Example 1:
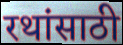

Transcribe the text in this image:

रथांसाठी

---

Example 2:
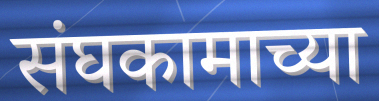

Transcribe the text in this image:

संघकामाच्या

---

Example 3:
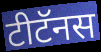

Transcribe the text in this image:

टीटॅनस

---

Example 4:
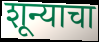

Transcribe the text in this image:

शून्याचा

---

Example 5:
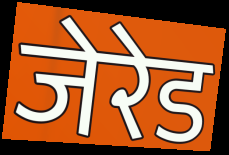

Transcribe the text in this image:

जेरेड